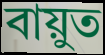
বায়ুত